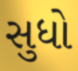
સુધો